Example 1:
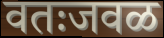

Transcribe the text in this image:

वतःजवळ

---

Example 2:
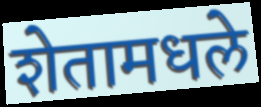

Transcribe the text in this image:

शेतामधले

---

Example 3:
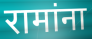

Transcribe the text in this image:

रामांना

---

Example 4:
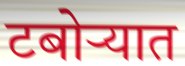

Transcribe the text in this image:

टबोऱ्यात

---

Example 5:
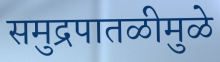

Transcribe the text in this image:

समुद्रपातळीमुळे